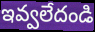
ఇవ్వలేదండి